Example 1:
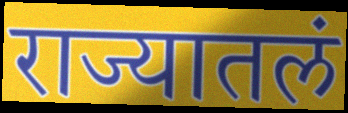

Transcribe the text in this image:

राज्यातलं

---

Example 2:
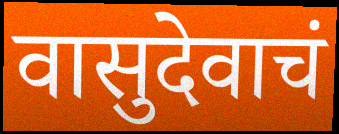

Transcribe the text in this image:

वासुदेवाचं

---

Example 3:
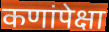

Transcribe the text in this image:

कणांपेक्षा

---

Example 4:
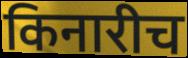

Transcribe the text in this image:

किनारीच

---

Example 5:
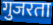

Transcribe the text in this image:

गुजरता